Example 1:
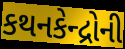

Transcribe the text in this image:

કથનકેન્દ્રોની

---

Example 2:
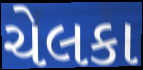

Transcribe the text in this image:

ચેલકા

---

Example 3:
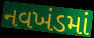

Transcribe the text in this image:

નવખંડમાં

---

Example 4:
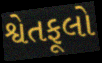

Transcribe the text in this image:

શ્વેતફૂલો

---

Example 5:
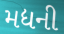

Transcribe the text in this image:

મદ્યની